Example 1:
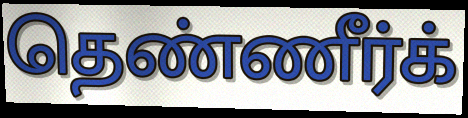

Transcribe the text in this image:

தெண்ணீர்க்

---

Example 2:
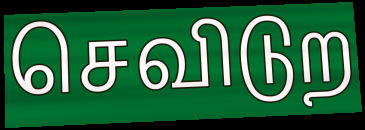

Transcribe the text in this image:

செவிடுற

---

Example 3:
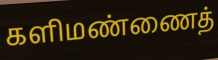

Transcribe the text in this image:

களிமண்ணைத்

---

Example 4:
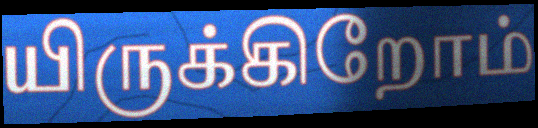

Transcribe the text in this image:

யிருக்கிறோம்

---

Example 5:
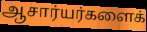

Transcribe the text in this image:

ஆசார்யர்களைக்